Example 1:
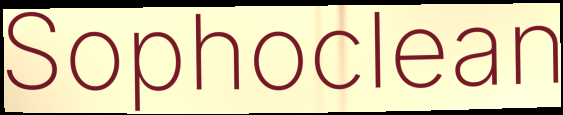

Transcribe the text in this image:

Sophoclean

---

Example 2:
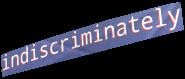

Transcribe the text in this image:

indiscriminately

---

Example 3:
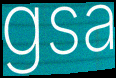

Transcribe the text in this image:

gsa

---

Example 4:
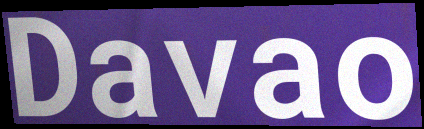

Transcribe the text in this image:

Davao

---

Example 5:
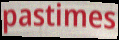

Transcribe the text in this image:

pastimes